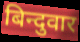
बिन्दुवार